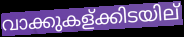
വാക്കുകള്ക്കിടയില്